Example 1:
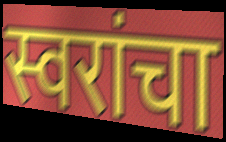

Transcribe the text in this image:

स्वरांचा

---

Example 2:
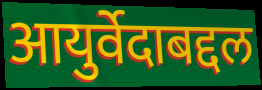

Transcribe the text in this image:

आयुर्वेदाबद्दल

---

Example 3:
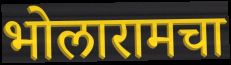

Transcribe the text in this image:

भोलारामचा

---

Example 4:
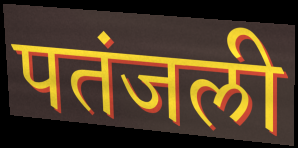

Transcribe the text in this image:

पतंजली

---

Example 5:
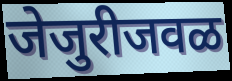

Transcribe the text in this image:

जेजुरीजवळ